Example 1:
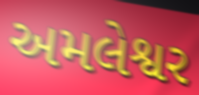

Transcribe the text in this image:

અમલેશ્વર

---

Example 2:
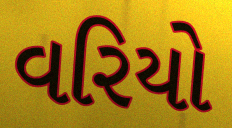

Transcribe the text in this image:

વરિયો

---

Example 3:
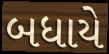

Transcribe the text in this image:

બધાયે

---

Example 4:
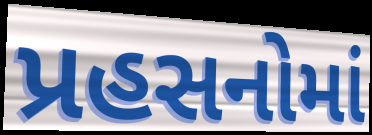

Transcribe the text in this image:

પ્રહસનોમાં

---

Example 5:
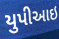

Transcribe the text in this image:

યુપીઆઇ